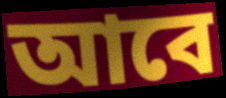
আবে